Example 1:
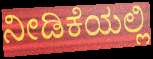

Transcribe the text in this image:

ನೀಡಿಕೆಯಲ್ಲಿ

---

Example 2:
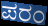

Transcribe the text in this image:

ಪರಂ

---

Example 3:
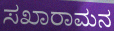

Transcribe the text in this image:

ಸಖಾರಾಮನ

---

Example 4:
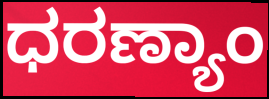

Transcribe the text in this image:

ಧರಣ್ಯಾಂ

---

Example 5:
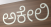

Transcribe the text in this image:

ಅಕೇಲಿ